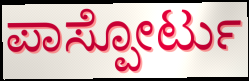
ಪಾಸ್ಪೋರ್ಟು